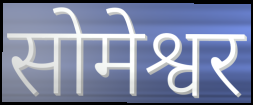
सोमेश्वर